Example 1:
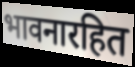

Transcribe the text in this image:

भावनारहित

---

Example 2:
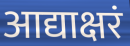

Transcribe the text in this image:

आद्याक्षरं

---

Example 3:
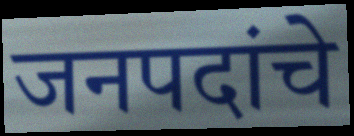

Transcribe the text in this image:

जनपदांचे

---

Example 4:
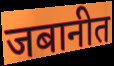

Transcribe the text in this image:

जबानीत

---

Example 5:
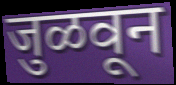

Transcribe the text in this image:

जुळवून